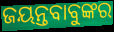
ଜୟନ୍ତବାବୁଙ୍କର